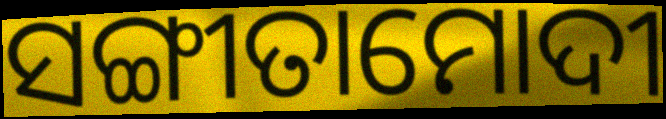
ସଙ୍ଗୀତାମୋଦୀ